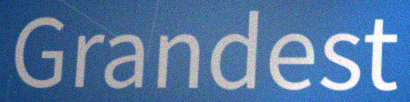
Grandest